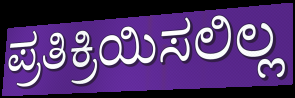
ಪ್ರತಿಕ್ರಿಯಿಸಲಿಲ್ಲ